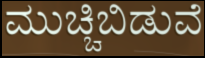
ಮುಚ್ಚಿಬಿಡುವೆ